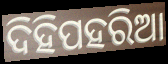
ଦିହିପହରିଆ